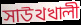
সাউথখালী